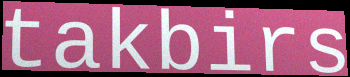
takbirs